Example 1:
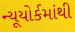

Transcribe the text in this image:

ન્યૂયોર્કમાંથી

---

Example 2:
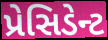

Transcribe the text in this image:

પ્રેસિડેન્ટ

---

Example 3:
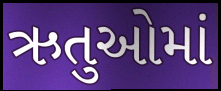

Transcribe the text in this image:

ઋતુઓમાં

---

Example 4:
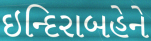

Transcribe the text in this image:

ઇન્દિરાબહેને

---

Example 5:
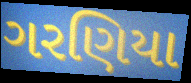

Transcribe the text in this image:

ગરણિયા